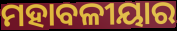
ମହାବଳୀୟାର